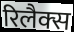
रिलैक्‍स